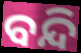
ବନ୍ଦି